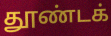
தூண்டக்